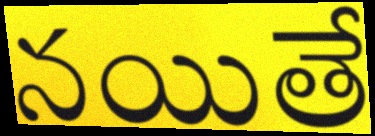
నయితే